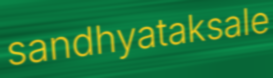
sandhyataksale